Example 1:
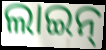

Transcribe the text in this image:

ଲାଇନ୍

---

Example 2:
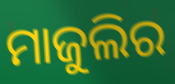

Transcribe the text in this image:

ମାଜୁଲିର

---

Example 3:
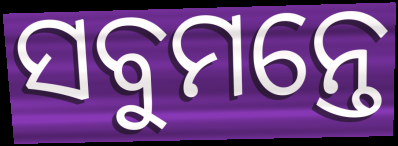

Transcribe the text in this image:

ସବୁମନ୍ତେ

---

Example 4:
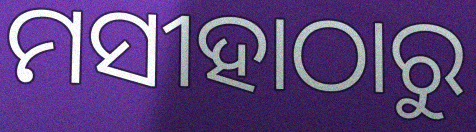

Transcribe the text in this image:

ମସୀହାଠାରୁ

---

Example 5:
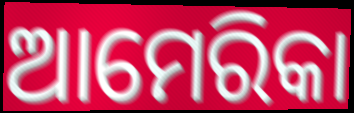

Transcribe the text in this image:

ଆମେରିକା